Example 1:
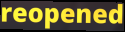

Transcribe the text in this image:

reopened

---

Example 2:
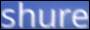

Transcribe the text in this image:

shure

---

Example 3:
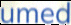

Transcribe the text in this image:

umed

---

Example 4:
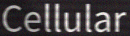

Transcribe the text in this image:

Cellular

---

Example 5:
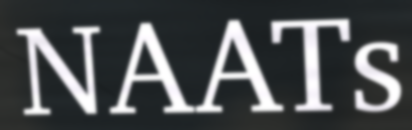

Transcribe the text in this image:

NAATs